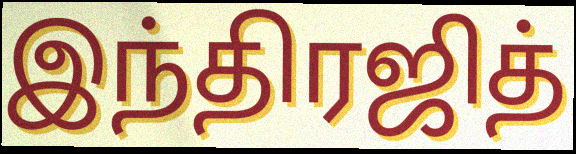
இந்திரஜித்